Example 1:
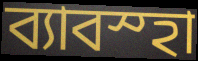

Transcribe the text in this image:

ব্যাবস্হা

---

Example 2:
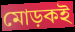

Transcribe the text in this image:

মোড়কই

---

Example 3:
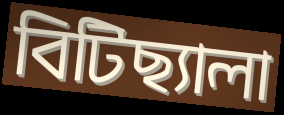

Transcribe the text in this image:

বিটিছ্যালা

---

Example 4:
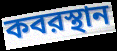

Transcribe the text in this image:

কবরস্থান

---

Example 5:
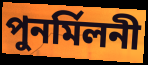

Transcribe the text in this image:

পুনর্মিলনী